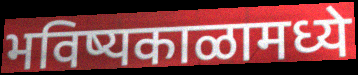
भविष्यकाळामध्ये